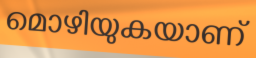
മൊഴിയുകയാണ്